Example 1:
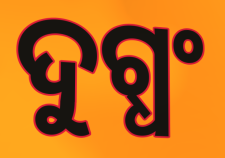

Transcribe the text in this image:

ଦୁଗ୍ଧଂ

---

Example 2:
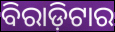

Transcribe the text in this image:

ବିରାଡ଼ିଟାର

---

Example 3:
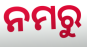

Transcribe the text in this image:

ନମରୁ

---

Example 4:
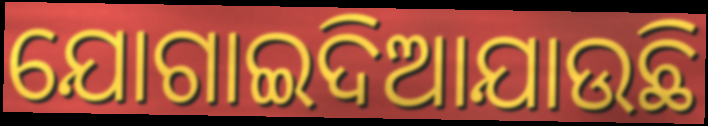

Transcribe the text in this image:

ଯୋଗାଇଦିଆଯାଉଛି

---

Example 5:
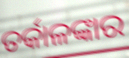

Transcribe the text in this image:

ତର୍କାଳଙ୍କାର